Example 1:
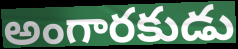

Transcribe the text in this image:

అంగారకుడు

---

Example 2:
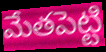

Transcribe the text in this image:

మేతపెట్టి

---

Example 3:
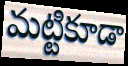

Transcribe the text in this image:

మట్టికూడా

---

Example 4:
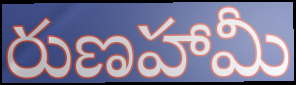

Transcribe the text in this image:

రుణహామీ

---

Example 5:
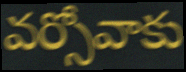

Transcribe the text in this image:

వర్సోవాకు